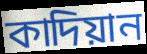
কাদিয়ান